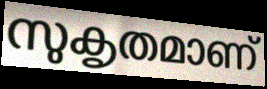
സുകൃതമാണ്